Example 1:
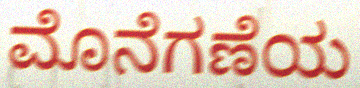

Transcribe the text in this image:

ಮೊನೆಗಣೆಯ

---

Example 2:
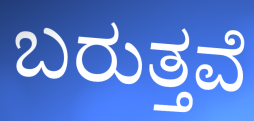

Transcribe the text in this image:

ಬರುತ್ತವೆ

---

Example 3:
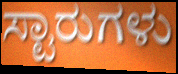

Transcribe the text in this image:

ಸ್ಟಾರುಗಳು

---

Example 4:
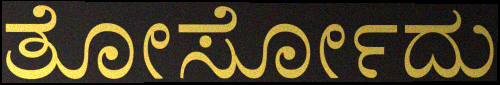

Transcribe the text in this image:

ತೋರ್ಸೋದು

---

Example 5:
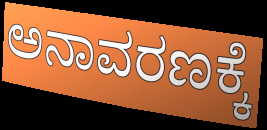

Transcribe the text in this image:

ಅನಾವರಣಕ್ಕೆ